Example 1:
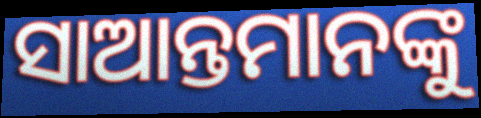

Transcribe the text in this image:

ସାଆନ୍ତମାନଙ୍କୁ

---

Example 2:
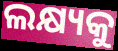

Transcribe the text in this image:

ଲକ୍ଷ୍ୟକୁ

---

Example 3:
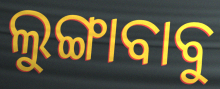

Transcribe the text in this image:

ଲୁଙ୍ଗାବାବୁ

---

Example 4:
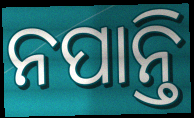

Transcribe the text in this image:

ନପାନ୍ତି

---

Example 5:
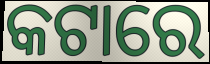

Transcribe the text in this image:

କଟାରେ